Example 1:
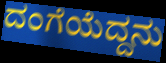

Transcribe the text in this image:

ದಂಗೆಯೆದ್ದನು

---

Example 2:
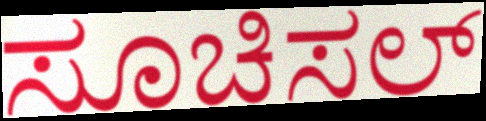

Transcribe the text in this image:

ಸೂಚಿಸಲ್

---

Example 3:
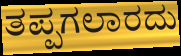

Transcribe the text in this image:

ತಪ್ಪಗಲಾರದು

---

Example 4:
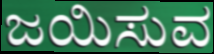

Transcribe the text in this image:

ಜಯಿಸುವ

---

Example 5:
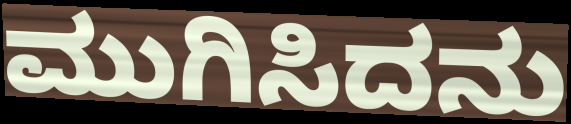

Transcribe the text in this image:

ಮುಗಿಸಿದನು